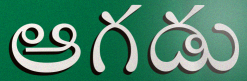
ఆగడు